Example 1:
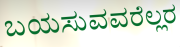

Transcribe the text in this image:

ಬಯಸುವವರೆಲ್ಲರ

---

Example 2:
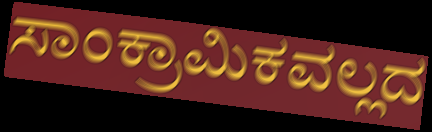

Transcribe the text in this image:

ಸಾಂಕ್ರಾಮಿಕವಲ್ಲದ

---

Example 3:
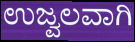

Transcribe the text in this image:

ಉಜ್ವಲವಾಗಿ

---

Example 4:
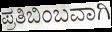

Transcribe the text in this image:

ಪ್ರತಿಬಿಂಬವಾಗಿ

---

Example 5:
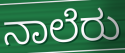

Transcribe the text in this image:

ನಾಲೆರು